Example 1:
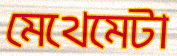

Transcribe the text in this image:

মেথেমেটা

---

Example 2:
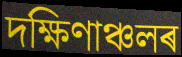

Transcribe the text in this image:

দক্ষিণাঞ্চলৰ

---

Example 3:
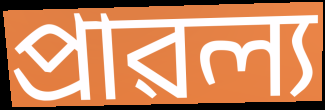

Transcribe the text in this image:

প্ৰাৱল্য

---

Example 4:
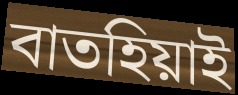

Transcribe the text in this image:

বাতহিয়াই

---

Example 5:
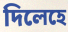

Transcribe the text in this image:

দিলেহে